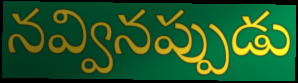
నవ్వినప్పుడు